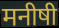
मनीषी